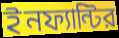
ইনফ্যান্টির